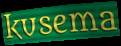
kusema